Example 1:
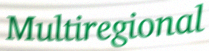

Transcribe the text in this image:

Multiregional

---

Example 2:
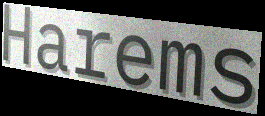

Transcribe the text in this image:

Harems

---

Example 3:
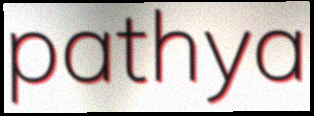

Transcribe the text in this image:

pathya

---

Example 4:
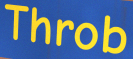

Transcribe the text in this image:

Throb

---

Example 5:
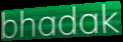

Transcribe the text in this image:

bhadak